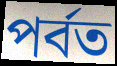
পৰ্বত